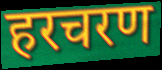
हरचरण